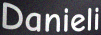
Danieli